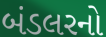
બંડલરનો